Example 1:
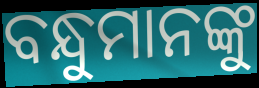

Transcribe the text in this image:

ବନ୍ଧୁମାନଙ୍କୁ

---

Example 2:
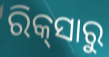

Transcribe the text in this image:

ରିକ୍‌ସାରୁ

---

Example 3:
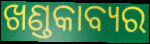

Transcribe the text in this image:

ଖଣ୍ଡକାବ୍ୟର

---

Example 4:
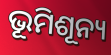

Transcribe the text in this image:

ଭୂମିଶୂନ୍ୟ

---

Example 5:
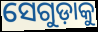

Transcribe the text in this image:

ସେଗୁଡ଼ାକୁ